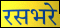
रसभरे